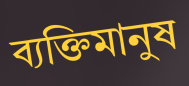
ব্যক্তিমানুষ